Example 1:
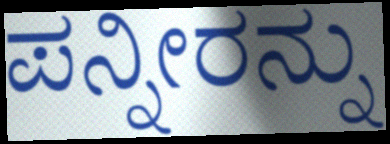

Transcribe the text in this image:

ಪನ್ನೀರನ್ನು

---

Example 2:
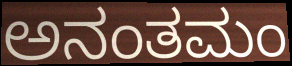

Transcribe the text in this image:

ಅನಂತಮಂ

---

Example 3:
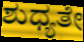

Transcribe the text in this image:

ಶುಧ್ಯತೇ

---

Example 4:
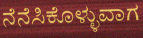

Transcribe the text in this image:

ನೆನೆಸಿಕೊಳ್ಳುವಾಗ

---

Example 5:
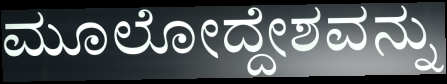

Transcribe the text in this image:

ಮೂಲೋದ್ದೇಶವನ್ನು